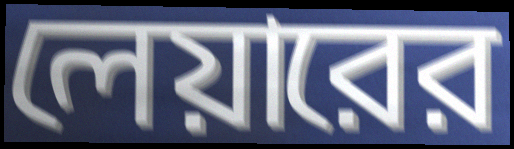
লেয়ারের